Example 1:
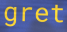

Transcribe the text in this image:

gret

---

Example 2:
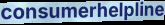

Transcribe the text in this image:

consumerhelpline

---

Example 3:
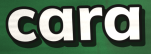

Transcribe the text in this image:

cara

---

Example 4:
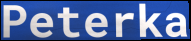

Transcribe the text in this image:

Peterka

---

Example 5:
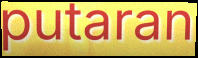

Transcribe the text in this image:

putaran